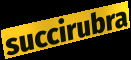
succirubra